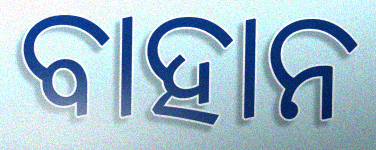
ବାହାନ